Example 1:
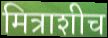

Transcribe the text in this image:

मित्राशीच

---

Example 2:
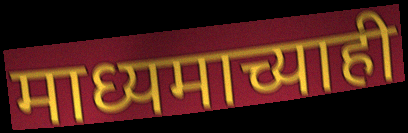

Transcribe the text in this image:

माध्यमाच्याही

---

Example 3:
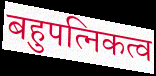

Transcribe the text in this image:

बहुपत्निकत्व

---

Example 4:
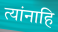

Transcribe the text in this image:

त्यांनाहि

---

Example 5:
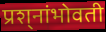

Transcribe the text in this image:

प्रश्नांभोवती